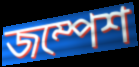
জম্পেশ